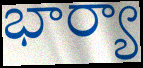
భార్యా